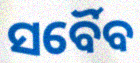
ସର୍ବୈବ